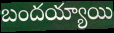
బందయ్యాయి